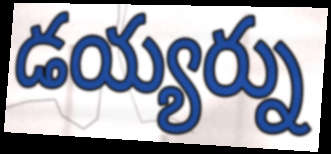
డయ్యర్ను